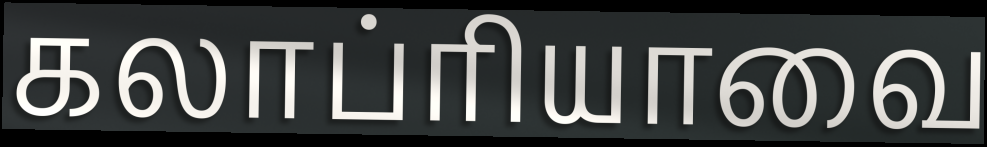
கலாப்ரியாவை